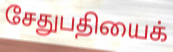
சேதுபதியைக்